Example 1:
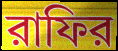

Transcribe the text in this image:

রাফির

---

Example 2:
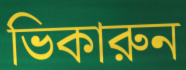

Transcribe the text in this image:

ভিকারুন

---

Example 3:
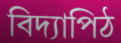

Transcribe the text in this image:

বিদ্যাপিঠ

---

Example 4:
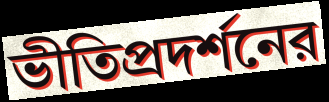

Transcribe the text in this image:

ভীতিপ্রদর্শনের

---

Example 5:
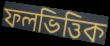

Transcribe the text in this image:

ফলভিত্তিক